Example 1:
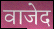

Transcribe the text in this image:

वाजेद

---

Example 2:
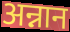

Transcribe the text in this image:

अन्नान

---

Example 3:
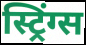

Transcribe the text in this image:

स्ट्रिंग्स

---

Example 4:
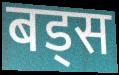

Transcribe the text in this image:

बड्स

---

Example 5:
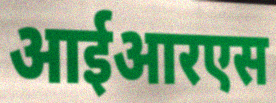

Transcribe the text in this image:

आईआरएस